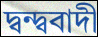
দ্বন্দ্ববাদী